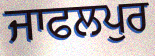
ਜਾਫਲਪੁਰ